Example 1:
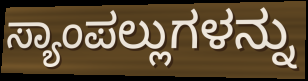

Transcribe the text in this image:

ಸ್ಯಾಂಪಲ್ಲುಗಳನ್ನು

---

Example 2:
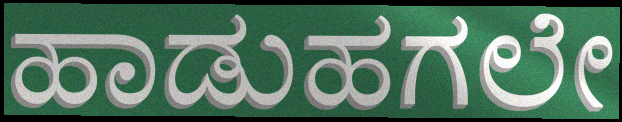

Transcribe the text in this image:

ಹಾಡುಹಗಲೇ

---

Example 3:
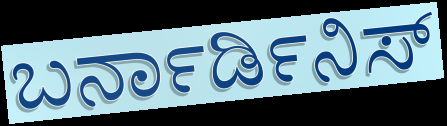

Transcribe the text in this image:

ಬರ್ನಾರ್ಡಿನಿಸ್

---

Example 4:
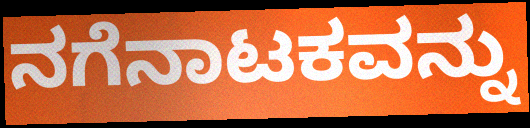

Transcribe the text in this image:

ನಗೆನಾಟಕವನ್ನು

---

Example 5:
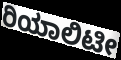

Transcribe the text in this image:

ರಿಯಾಲಿಟೀ